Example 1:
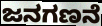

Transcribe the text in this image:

ಜನಗಣನೆ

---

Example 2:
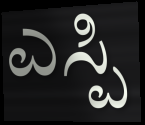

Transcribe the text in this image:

ಎಸ್ಪಿ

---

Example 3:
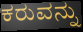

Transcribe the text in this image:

ಕರುವನ್ನು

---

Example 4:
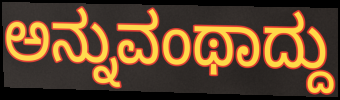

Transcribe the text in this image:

ಅನ್ನುವಂಥಾದ್ದು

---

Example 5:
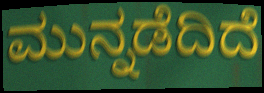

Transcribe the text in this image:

ಮುನ್ನಡೆದಿದೆ